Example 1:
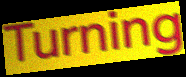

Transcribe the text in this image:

Turning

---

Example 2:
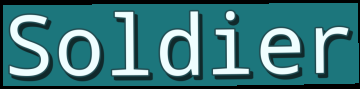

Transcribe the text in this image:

Soldier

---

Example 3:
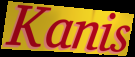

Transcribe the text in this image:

Kanis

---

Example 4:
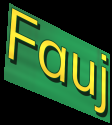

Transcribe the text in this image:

Fauj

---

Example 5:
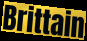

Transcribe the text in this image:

Brittain